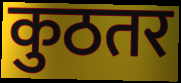
कुठतर